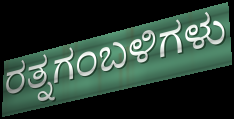
ರತ್ನಗಂಬಳಿಗಳು